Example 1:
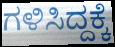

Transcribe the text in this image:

ಗಳಿಸಿದ್ದಕ್ಕೆ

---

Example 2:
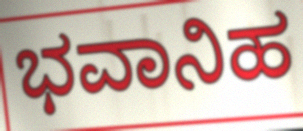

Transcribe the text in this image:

ಭವಾನಿಹ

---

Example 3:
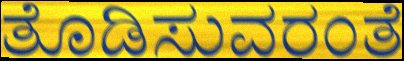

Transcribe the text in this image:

ತೊಡಿಸುವರಂತೆ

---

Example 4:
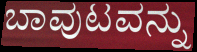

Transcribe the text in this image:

ಬಾವುಟವನ್ನು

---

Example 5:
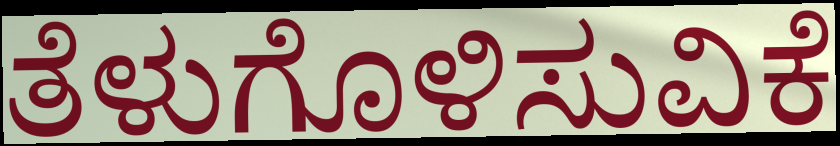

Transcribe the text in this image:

ತೆಳುಗೊಳಿಸುವಿಕೆ